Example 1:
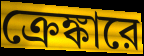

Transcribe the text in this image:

ক্রেঙ্কারে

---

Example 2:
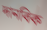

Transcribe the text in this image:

দানবিক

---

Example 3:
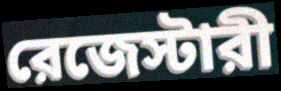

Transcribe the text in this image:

রেজেস্টারী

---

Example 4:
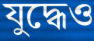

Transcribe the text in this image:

যুদ্ধেও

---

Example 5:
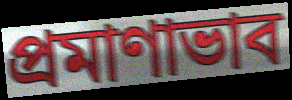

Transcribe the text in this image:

প্রমাণাভাব